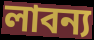
লাবন্য